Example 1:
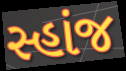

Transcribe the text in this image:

સ્હાંજ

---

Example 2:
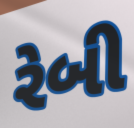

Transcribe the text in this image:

રેબી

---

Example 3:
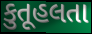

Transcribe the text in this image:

કુતૂહલતા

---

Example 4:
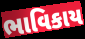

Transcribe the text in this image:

ભાવિકાય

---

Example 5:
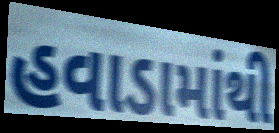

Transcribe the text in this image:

હવાડામાંથી